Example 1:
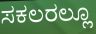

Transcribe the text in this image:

ಸಕಲರಲ್ಲೂ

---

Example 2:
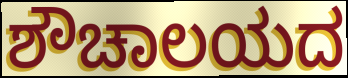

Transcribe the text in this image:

ಶೌಚಾಲಯದ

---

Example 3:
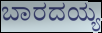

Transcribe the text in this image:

ಬಾರದಯ್ಯ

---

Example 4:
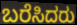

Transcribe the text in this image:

ಬರೆಸಿದರು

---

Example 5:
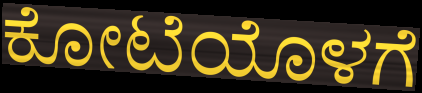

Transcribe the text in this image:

ಕೋಟೆಯೊಳಗೆ